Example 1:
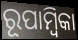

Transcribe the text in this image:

ରୂପାମ୍ୱିକା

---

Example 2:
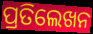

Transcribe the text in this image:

ପ୍ରତିଲେଖନ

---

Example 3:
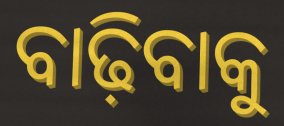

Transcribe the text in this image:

ବାଢ଼ିବାକୁ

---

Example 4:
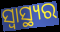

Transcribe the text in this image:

ସ୍ୱାସ୍ଥ୍ୟର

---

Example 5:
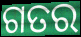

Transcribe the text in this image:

ଗତର